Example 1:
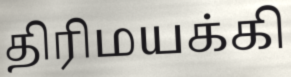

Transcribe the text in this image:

திரிமயக்கி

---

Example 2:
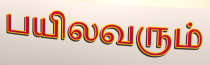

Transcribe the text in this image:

பயிலவரும்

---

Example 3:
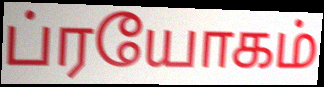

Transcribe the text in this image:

ப்ரயோகம்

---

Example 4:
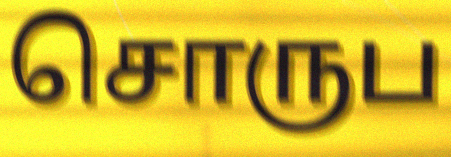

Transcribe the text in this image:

சொருப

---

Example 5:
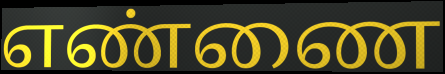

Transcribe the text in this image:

எண்ணை